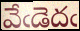
వేఁడెదఁ